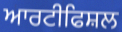
ਆਰਟੀਫਿਸ਼ਲ